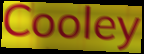
Cooley